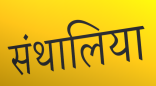
संथालिया